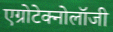
एग्रोटेक्नोलॉजी